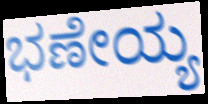
ಭಣೇಯ್ಯ